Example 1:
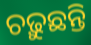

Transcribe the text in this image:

ଚଢ଼ୁଛନ୍ତି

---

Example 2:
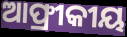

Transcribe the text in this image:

ଆଫ୍ରୀକୀୟ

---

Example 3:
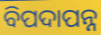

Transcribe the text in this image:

ବିପଦାପନ୍ନ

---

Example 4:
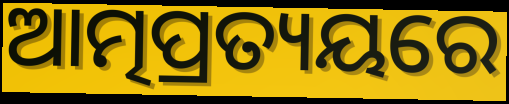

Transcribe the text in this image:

ଆତ୍ମପ୍ରତ୍ୟୟରେ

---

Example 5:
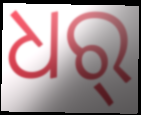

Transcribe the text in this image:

ଧର୍